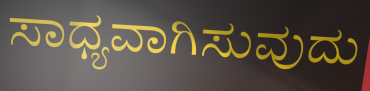
ಸಾಧ್ಯವಾಗಿಸುವುದು